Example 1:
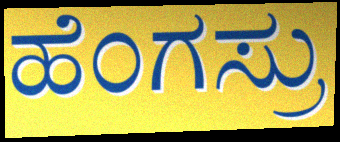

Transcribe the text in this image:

ಹೆಂಗಸ್ರು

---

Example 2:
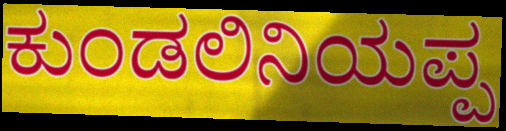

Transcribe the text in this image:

ಕುಂಡಲಿನಿಯಪ್ಪ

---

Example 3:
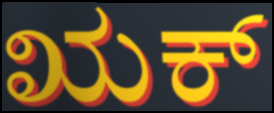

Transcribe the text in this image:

ಋಕ್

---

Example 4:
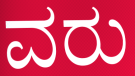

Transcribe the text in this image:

ವರು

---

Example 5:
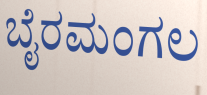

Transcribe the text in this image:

ಬೈರಮಂಗಲ